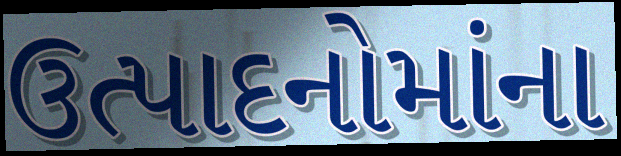
ઉત્પાદનોમાંના